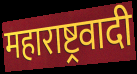
महाराष्ट्रवादी